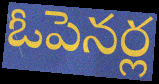
ఓపెనర్ల